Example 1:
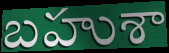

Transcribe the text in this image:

బహుశా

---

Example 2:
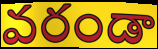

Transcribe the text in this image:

వరండా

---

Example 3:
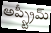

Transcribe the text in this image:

అప్స్ట్రీమ్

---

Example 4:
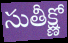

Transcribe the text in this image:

సుతీక్ష్ణో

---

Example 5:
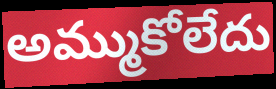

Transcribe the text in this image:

అమ్ముకోలేదు